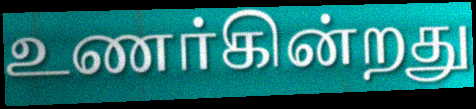
உணர்கின்றது